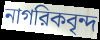
নাগরিকবৃন্দ